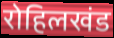
रोहिलखंड